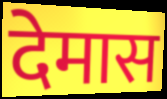
देमास